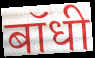
बॉधी